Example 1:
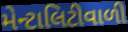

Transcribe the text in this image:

મેન્ટાલિટીવાળી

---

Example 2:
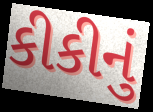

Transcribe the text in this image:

કીકીનું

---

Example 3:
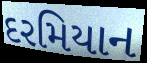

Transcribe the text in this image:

દરમિયાન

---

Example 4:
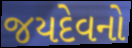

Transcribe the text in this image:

જયદેવનો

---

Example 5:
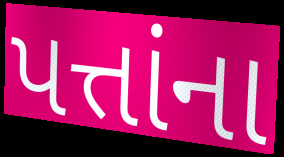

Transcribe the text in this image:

પત્તાંના